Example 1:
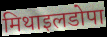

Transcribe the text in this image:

मिथाइलडोपा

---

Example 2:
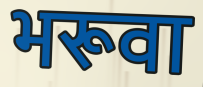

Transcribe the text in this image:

भरूवा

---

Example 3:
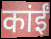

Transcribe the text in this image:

कांईं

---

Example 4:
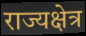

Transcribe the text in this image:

राज्यक्षेत्र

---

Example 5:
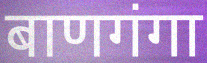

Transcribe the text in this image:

बाणगंगा